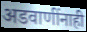
अडवाणींनाही